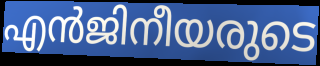
എൻജിനീയരുടെ